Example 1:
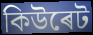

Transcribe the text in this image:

কিউৰেট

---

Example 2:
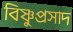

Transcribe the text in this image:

বিষ্ণুপ্ৰসাদ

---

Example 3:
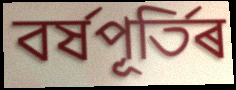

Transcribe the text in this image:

বৰ্ষপূৰ্তিৰ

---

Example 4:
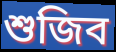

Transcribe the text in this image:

শুজিব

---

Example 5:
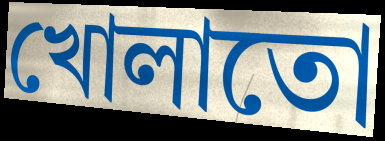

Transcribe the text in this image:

খোলাতো